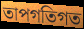
তাপগতিগত